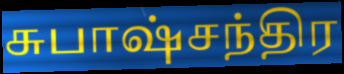
சுபாஷ்சந்திர